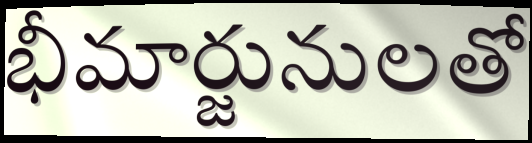
భీమార్జునులతో